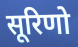
सूरिणो